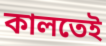
কালতেই